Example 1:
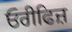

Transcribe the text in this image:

ਓਰੀਫਿਜ਼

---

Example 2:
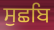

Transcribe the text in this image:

ਸੁਛਬਿ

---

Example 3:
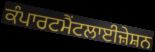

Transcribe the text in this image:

ਕੰਪਾਰਟਮੈਂਟਲਾਈਜ਼ੇਸ਼ਨ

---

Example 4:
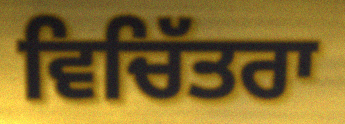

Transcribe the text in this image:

ਵਿਚਿੱਤਰਾ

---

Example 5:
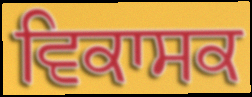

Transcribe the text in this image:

ਵਿਕਾਸਕ